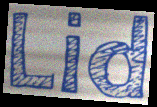
Lid